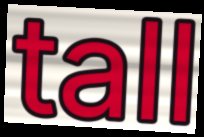
tall